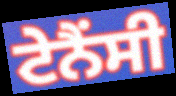
ਟੇਨੈਂਸੀ